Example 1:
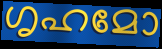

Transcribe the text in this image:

ഗൃഹമോ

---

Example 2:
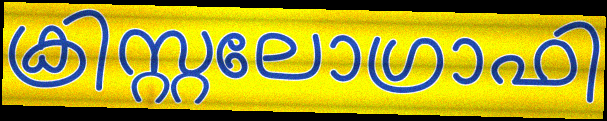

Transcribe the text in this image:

ക്രിസ്റ്റലോഗ്രാഫി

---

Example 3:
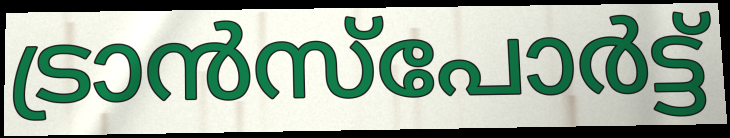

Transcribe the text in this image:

ട്രാൻസ്പോർട്ട്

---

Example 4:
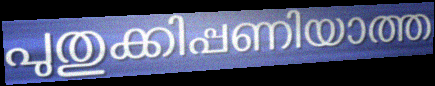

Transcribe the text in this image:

പുതുക്കിപ്പണിയാത്ത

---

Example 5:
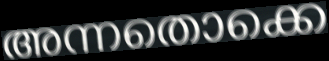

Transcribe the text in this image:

അന്നതൊക്കെ